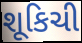
શૂકિચી